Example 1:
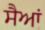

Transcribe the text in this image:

ਸੈਆਂ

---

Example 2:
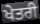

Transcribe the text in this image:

ਖੇਤਰੀ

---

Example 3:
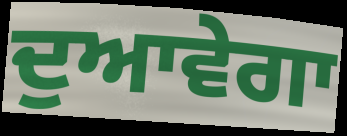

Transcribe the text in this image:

ਦੁਆਵੇਗਾ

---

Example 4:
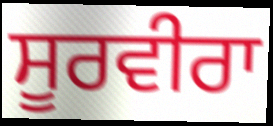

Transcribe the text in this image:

ਸੂਰਵੀਰਾ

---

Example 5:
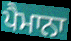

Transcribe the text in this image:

ਪੈਮਾਨਾ